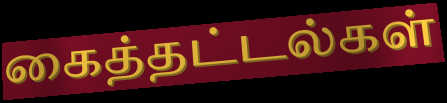
கைத்தட்டல்கள்